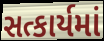
સત્કાર્યમાં